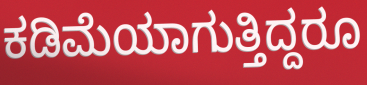
ಕಡಿಮೆಯಾಗುತ್ತಿದ್ದರೂ